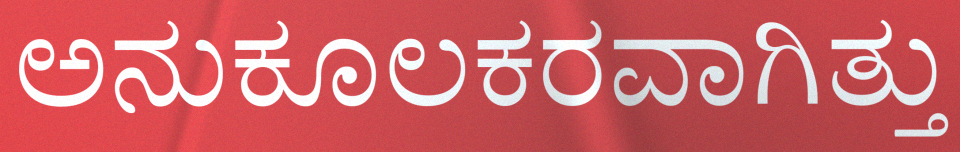
ಅನುಕೂಲಕರವಾಗಿತ್ತು